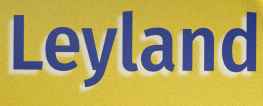
Leyland